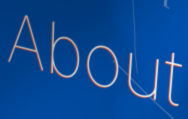
About